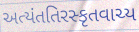
અત્યંતતિરસ્કૃતવાચ્ય